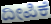
ದೀಪಿಕೆ